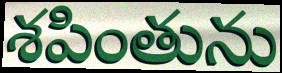
శపింతును